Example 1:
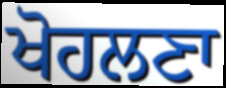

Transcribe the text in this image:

ਖੋਹਲਣਾ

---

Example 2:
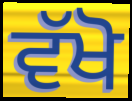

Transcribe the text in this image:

ਵੱਖੋ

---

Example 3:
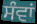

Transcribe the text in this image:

ਸੰਵਾਂ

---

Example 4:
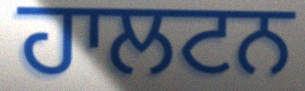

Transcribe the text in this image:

ਹਾਲਟਨ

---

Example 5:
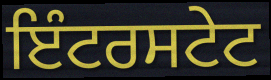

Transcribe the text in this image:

ਇੰਟਰਸਟੇਟ